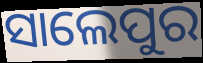
ସାଲେପୁର